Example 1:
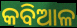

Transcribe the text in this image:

କବିଆଳ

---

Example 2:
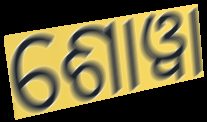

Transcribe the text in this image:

ଶୋୱା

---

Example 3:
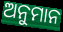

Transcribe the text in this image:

ଅନୁମାନ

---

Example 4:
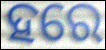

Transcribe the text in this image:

ହରେ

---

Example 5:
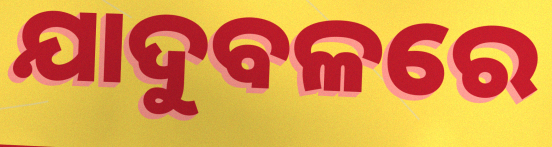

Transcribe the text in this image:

ଯାଦୁବଳରେ